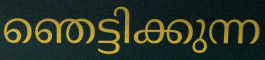
ഞെട്ടിക്കുന്ന